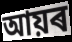
আয়ৰ